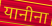
यानीना